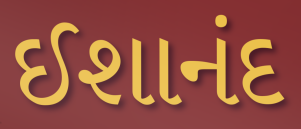
ઈશાનંદ